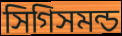
সিগিসমন্ড